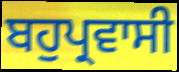
ਬਹੁਪ੍ਰਵਾਸੀ